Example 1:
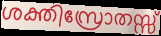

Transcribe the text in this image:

ശക്തിസ്രോതസ്സ്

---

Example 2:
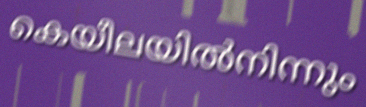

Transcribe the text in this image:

കെയീലയിൽനിന്നും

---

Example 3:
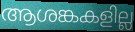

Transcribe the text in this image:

ആശങ്കകളില്ല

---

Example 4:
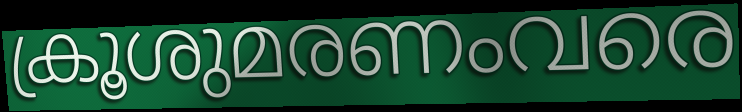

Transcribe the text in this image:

ക്രൂശുമരണംവരെ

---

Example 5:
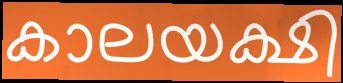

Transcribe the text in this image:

കാലയക്ഷി